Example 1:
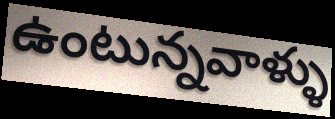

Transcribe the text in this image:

ఉంటున్నవాళ్ళు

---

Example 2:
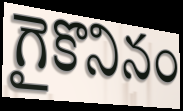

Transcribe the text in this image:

గైకొనినం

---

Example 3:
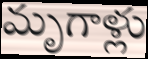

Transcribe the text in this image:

మృగాళ్లు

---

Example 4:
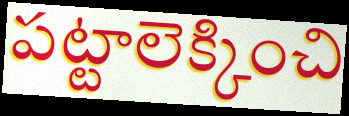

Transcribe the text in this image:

పట్టాలెక్కించి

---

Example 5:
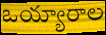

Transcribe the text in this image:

ఒయ్యారాల